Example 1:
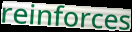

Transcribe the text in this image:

reinforces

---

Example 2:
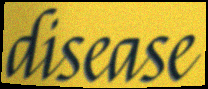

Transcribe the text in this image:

disease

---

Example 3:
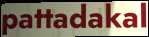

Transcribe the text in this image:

pattadakal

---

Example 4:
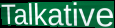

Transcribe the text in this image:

Talkative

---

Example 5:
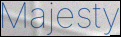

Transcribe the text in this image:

Majesty